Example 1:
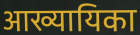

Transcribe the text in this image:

आख्यायिका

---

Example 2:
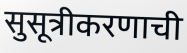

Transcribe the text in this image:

सुसूत्रीकरणाची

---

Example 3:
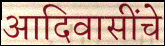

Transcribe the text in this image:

आदिवासींचे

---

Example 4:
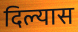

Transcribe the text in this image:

दिल्यास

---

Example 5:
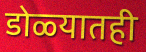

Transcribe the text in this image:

डोळ्यातही